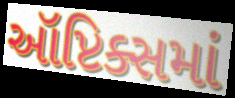
ઑપ્ટિક્સમાં